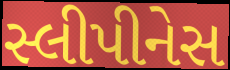
સ્લીપીનેસ